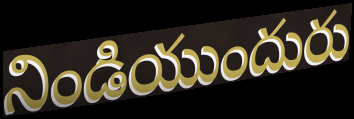
నిండియుందురు